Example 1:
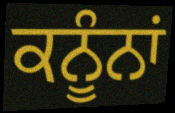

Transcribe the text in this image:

ਕਨੂੰਨਾਂ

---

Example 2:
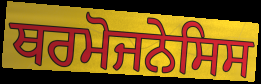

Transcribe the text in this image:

ਥਰਮੋਜਨੇਸਿਸ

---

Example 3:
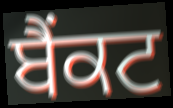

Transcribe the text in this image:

ਬੈਂਕਟ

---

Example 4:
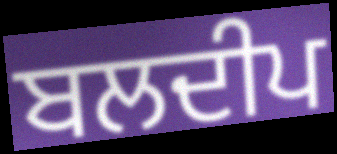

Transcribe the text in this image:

ਬਲਦੀਪ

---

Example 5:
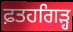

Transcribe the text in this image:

ਫ਼ਤਹਗਿੜ੍ਹ